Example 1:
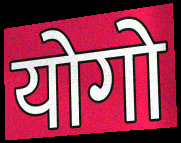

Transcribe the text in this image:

योगो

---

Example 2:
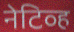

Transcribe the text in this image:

नेटिव्ह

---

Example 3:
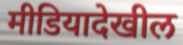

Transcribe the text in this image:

मीडियादेखील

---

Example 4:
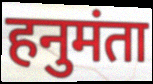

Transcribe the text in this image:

हनुमंता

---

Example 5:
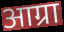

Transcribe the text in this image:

आग्रा